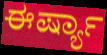
ಈರ್ಷ್ಯಾ